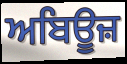
ਅਬਿਊਜ਼